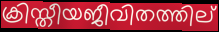
ക്രിസ്തീയജീവിതത്തില്